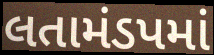
લતામંડપમાં